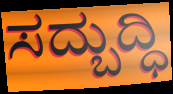
ಸದ್ಬುದ್ಧಿ